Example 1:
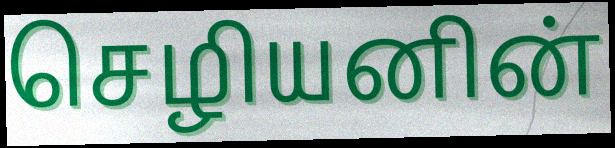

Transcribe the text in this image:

செழியனின்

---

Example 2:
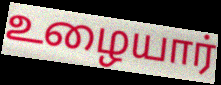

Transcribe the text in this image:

உழையார்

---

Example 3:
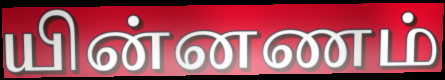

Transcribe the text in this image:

யின்னணம்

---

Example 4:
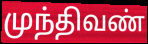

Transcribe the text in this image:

முந்திவண்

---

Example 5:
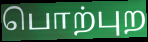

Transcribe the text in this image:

பொற்புற